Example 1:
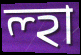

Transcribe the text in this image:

ল্হা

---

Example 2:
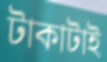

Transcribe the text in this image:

টাকাটাই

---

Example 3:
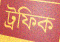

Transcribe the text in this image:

ট্রফিক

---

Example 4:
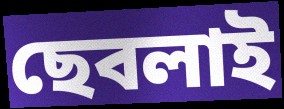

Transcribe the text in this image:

ছেবলাই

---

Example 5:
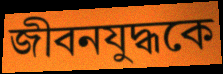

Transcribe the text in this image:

জীবনযুদ্ধকে